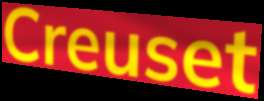
Creuset